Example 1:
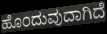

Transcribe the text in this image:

ಹೊಂದುವುದಾಗಿದೆ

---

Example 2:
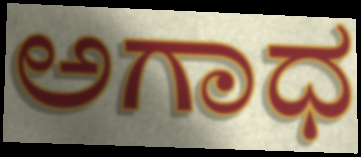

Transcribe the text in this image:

ಅಗಾಧ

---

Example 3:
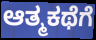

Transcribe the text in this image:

ಆತ್ಮಕಥೆಗೆ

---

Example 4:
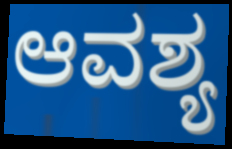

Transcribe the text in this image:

ಆವಶ್ಯ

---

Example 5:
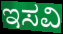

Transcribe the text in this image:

ಇಸವಿ